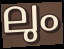
ലും